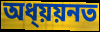
অধ্য়য়নত